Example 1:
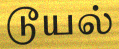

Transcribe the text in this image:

டூயல்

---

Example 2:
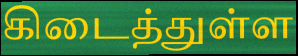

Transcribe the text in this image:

கிடைத்துள்ள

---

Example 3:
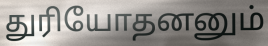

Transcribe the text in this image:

துரியோதனனும்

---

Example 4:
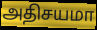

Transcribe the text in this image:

அதிசயமா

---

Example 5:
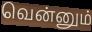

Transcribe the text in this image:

வென்னும்